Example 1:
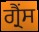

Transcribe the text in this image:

ਗ੍ਰੈਂਸ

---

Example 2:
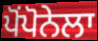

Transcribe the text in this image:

ਪੋਂਪੋਨੇਲਾ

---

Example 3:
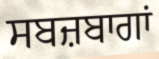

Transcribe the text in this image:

ਸਬਜ਼ਬਾਗਾਂ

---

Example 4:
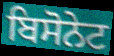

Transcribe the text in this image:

ਬਿਸੋਨੇਟ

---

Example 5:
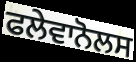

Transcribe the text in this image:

ਫਲੇਵਾਨੋਲਸ